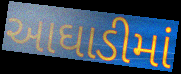
આઘાડીમાં